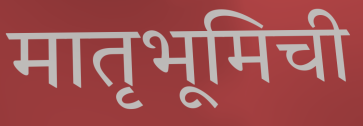
मातृभूमिची